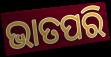
ଭାତପରି